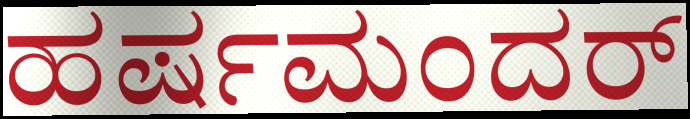
ಹರ್ಷಮಂದರ್